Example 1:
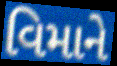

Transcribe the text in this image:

વિમાને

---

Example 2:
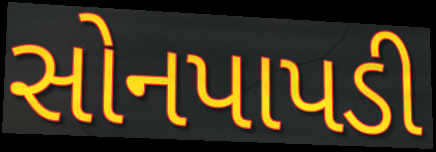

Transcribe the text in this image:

સોનપાપડી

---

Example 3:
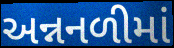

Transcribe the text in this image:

અન્નનળીમાં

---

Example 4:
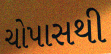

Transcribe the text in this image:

ચોપાસથી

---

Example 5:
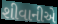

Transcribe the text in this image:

શીવાનીએ